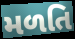
મળતિ